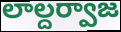
లాల్దర్వాజ